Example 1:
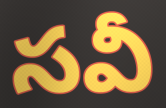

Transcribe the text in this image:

సవీ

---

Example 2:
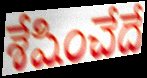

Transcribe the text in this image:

శేషించేదే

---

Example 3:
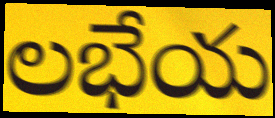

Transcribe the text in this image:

లభేయ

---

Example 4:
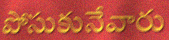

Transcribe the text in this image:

పోసుకునేవారు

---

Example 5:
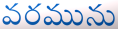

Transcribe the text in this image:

వరమును